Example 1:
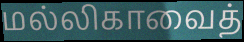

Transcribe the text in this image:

மல்லிகாவைத்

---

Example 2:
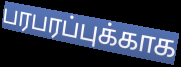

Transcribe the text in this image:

பரபரப்புக்காக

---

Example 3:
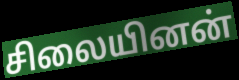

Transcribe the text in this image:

சிலையினன்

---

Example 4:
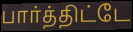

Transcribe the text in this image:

பார்த்திட்டே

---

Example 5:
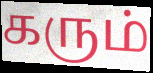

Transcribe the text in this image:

கரும்